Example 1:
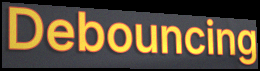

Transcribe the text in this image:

Debouncing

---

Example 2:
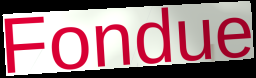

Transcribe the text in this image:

Fondue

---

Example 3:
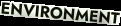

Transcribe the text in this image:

ENVIRONMENT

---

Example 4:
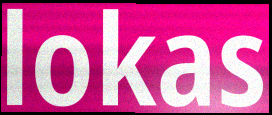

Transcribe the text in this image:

lokas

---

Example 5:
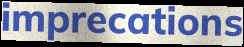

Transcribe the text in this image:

imprecations